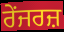
ਰੇਂਜਰਜ਼